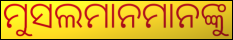
ମୁସଲମାନମାନଙ୍କୁ